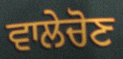
ਵਾਲੇਚੋਣ